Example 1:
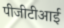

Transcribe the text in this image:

पीजीटीआई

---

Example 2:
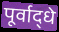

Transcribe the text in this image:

पूर्वाद्धे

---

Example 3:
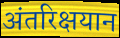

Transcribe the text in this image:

अंतरिक्षयान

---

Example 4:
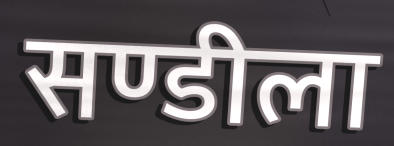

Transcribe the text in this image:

सण्डीला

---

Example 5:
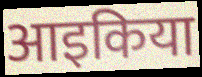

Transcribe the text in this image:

आइकिया